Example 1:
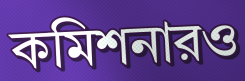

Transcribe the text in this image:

কমিশনারও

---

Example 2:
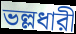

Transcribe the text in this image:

ভল্লধারী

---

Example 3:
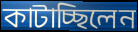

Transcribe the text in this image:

কাটাচ্ছিলেন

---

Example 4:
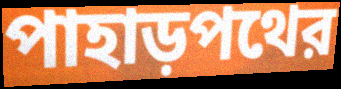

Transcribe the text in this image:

পাহাড়পথের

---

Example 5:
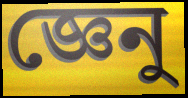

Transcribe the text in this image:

জ্ঞেনু